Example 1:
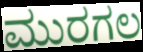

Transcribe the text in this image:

ಮುರಗಲ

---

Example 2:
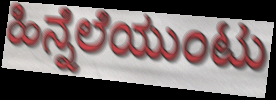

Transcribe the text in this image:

ಹಿನ್ನೆಲೆಯುಂಟು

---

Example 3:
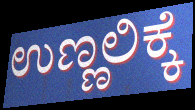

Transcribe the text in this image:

ಉಣ್ಣಲಿಕ್ಕೆ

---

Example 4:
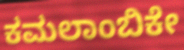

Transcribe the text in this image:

ಕಮಲಾಂಬಿಕೇ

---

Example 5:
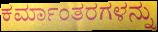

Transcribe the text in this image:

ಕರ್ಮಾಂತರಗಳನ್ನು